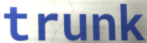
trunk